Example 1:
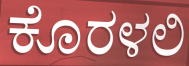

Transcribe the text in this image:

ಕೊರಳಲಿ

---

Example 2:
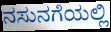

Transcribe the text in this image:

ನಸುನಗೆಯಲ್ಲಿ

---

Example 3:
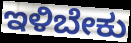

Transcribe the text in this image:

ಇಳಿಬೇಕು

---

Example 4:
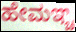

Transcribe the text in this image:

ಹೇಮಞ್ಚ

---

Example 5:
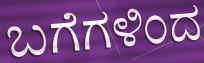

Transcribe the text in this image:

ಬಗೆಗಳಿಂದ